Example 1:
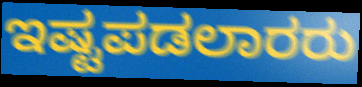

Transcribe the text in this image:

ಇಷ್ಟಪಡಲಾರರು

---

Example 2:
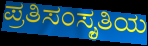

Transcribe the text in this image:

ಪ್ರತಿಸಂಸ್ಕೃತಿಯ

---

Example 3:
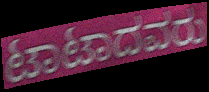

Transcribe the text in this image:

ಟಾಟಾದವರು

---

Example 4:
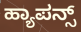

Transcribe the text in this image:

ಹ್ಯಾಪನ್ಸ್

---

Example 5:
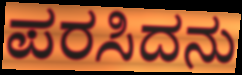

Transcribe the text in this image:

ಪರಸಿದನು